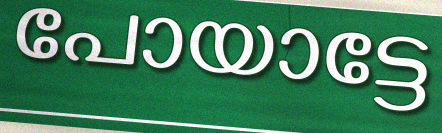
പോയാട്ടേ